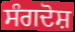
ਸੰਗਦੋਸ਼